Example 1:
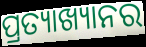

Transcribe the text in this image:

ପ୍ରତ୍ୟାଖ୍ୟାନର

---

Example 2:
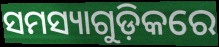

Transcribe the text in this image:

ସମସ୍ୟାଗୁଡ଼ିକରେ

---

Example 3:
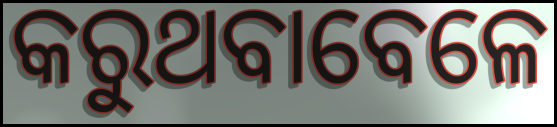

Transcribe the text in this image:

କରୁଥବାବେଳେ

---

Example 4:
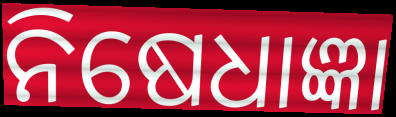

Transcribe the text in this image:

ନିଷେଧାଜ୍ଞା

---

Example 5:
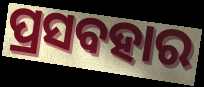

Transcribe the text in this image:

ପ୍ରସବହାର